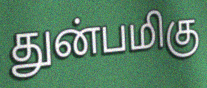
துன்பமிகு